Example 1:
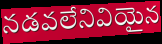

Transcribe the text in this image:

నడవలేనివియైన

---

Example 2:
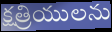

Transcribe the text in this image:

క్షత్రియులను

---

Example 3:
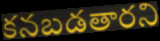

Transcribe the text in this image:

కనబడతారని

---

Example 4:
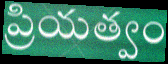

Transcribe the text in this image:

ప్రియత్వం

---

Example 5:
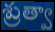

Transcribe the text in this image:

శ్రుత్వా